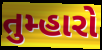
તુમ્હારો